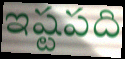
ఇష్టపది